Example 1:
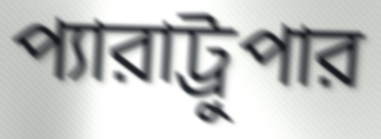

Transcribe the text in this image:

প্যারাট্রুপার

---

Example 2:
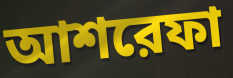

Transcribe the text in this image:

আশরেফা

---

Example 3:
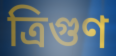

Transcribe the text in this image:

ত্রিগুণ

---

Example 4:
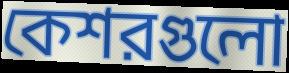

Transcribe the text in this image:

কেশরগুলো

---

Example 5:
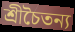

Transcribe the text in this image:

শ্রীচৈতন্য